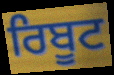
ਰਿਬੂਟ